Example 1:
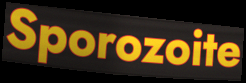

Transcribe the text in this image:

Sporozoite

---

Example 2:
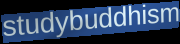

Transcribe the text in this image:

studybuddhism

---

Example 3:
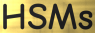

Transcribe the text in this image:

HSMs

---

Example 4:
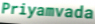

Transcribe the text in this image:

Priyamvada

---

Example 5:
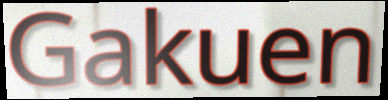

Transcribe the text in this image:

Gakuen